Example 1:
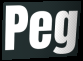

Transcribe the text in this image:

Peg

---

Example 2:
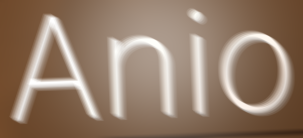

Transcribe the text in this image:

Anio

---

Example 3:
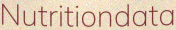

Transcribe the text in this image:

Nutritiondata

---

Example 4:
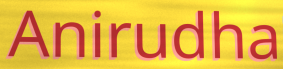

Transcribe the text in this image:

Anirudha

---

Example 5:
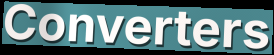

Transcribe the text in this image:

Converters